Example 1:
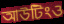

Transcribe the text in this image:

আউটিংও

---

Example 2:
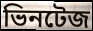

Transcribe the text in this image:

ভিনটেজ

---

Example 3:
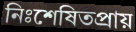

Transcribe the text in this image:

নিঃশেষিতপ্রায়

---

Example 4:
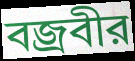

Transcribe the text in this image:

বজ্রবীর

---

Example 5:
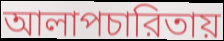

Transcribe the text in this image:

আলাপচারিতায়